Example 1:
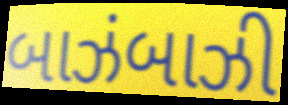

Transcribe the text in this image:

બાઝંબાઝી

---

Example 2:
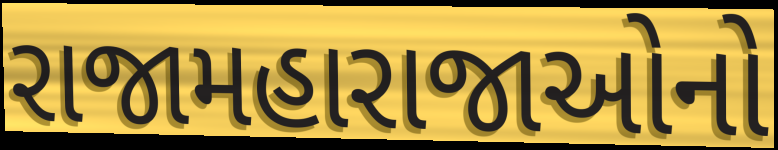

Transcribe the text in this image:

રાજામહારાજાઓનો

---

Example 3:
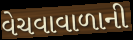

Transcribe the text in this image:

વેચવાવાળાની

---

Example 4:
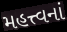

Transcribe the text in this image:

મહત્ત્વનાં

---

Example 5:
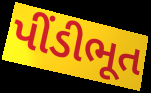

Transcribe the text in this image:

પીંડીભૂત